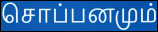
சொப்பனமும்